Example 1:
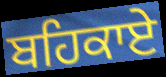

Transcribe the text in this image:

ਬਹਿਕਾਏ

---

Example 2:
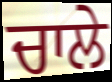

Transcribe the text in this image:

ਚਾਲੇ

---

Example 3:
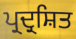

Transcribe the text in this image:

ਪ੍ਰਦ੍ਰਸ਼ਿਤ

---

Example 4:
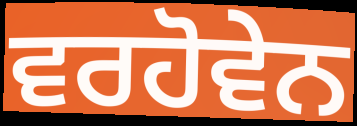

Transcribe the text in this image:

ਵਰਹੋਵੇਨ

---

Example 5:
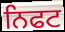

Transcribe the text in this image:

ਨਿਫਟ